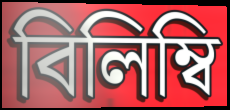
বিলিম্বি